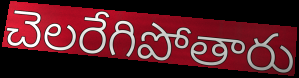
చెలరేగిపోతారు